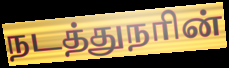
நடத்துநரின்